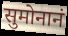
सुमोनानं